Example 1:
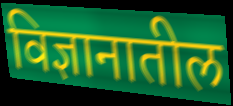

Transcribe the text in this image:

विज्ञानातील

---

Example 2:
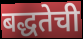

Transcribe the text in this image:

बद्धतेची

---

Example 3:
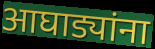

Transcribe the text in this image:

आघाड्यांना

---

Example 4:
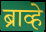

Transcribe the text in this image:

ब्राव्हे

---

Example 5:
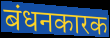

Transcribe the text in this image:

बंधनकारक